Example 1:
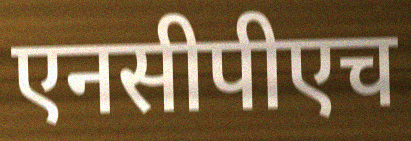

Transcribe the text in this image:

एनसीपीएच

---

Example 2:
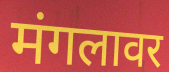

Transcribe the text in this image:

मंगलावर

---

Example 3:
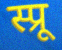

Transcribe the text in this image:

स्प्रू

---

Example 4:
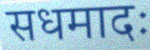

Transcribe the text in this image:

सधमादः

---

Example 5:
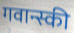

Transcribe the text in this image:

गवान्स्की